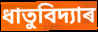
ধাতুবিদ্যাৰ